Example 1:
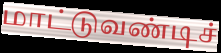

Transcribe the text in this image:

மாட்டுவண்டிச்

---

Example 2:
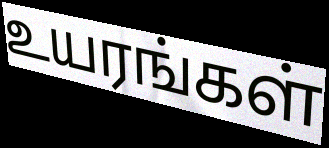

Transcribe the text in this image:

உயரங்கள்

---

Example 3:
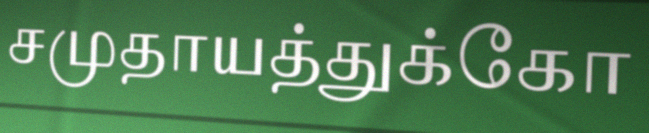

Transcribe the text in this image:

சமுதாயத்துக்கோ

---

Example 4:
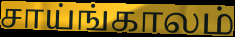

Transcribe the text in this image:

சாய்ங்காலம்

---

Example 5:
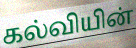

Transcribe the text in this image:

கல்வியின்